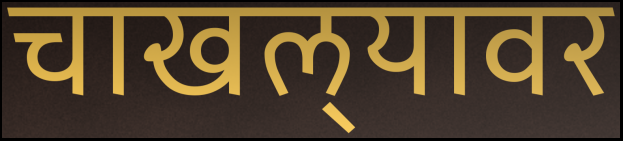
चाखल्यावर